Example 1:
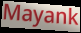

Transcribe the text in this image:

Mayank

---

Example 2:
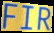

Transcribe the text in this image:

FIR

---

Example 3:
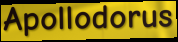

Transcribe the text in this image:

Apollodorus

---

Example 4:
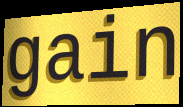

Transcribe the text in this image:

gain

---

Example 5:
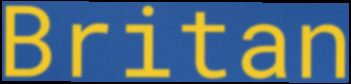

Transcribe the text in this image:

Britan